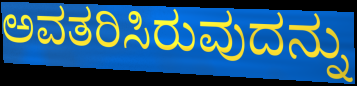
ಅವತರಿಸಿರುವುದನ್ನು